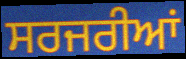
ਸਰਜਰੀਆਂ